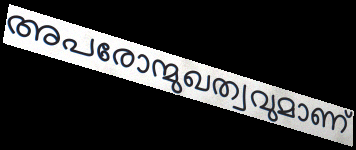
അപരോന്മുഖത്വവുമാണ്